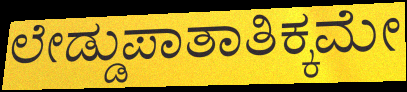
ಲೇಡ್ಡುಪಾತಾತಿಕ್ಕಮೇ